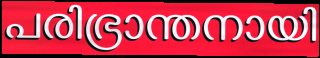
പരിഭ്രാന്തനായി